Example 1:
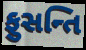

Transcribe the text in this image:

ફુસન્તિ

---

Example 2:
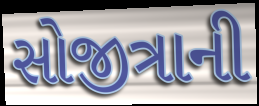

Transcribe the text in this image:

સોજીત્રાની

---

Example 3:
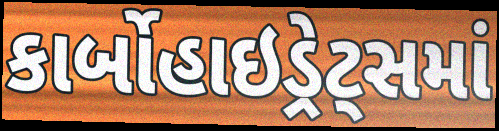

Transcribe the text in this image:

કાર્બોહાઇડ્રેટ્સમાં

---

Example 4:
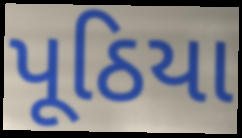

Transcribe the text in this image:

પૂઠિયા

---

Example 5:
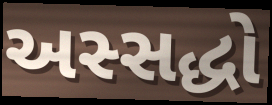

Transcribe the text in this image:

અસ્સદ્ધો